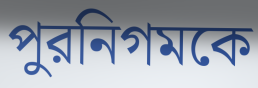
পুরনিগমকে